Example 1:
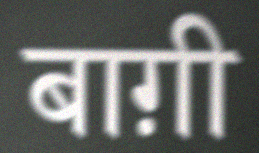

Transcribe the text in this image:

बाग़ी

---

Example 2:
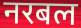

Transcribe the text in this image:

नरबल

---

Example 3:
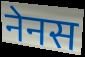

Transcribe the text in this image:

नेनस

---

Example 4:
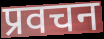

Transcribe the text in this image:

प्रवचन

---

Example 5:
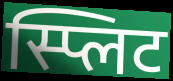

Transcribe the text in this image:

स्प्लिट